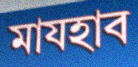
মাযহাব